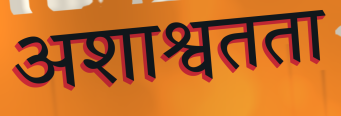
अशाश्वतता